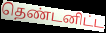
தெண்டனிட்ட